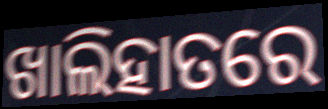
ଖାଲିହାତରେ